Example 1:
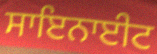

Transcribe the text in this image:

ਸਾਇਨਾਈਟ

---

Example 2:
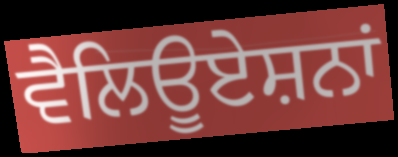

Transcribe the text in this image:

ਵੈਲਿਊਏਸ਼ਨਾਂ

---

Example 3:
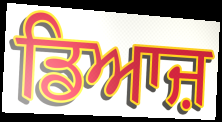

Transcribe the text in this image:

ਡਿਆਜ਼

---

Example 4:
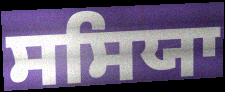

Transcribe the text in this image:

ਸਸਿਯਾ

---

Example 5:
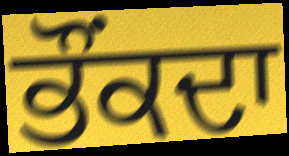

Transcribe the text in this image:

ਭੌਂਕਦਾ